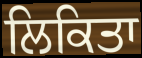
ਲਿਕਿਤਾ